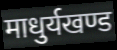
माधुर्यखण्ड